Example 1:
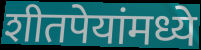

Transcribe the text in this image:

शीतपेयांमध्ये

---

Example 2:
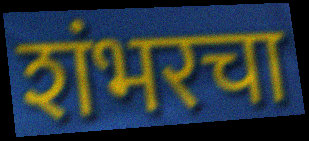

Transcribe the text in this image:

शंभरचा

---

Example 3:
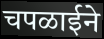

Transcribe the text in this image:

चपळाईने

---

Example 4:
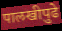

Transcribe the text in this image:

पालखीपुढे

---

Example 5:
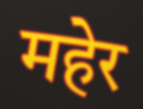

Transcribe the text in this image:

महेर